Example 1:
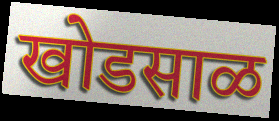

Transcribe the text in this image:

खोडसाळ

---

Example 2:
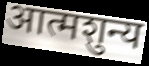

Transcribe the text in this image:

आत्मशुन्य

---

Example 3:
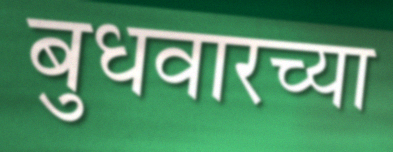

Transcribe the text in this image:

बुधवारच्या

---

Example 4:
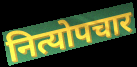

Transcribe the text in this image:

नित्योपचार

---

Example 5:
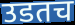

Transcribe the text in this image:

उडतच